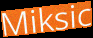
Miksic